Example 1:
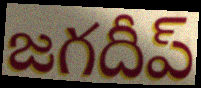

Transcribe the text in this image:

జగదీప్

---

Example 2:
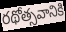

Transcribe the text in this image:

రథోత్సవానికి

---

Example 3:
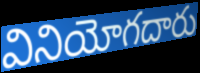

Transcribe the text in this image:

వినియోగదారు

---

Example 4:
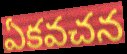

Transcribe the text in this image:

ఏకవచన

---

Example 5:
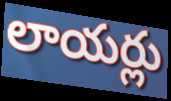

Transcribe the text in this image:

లాయర్లు